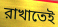
রাখাতেই